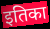
इतिका